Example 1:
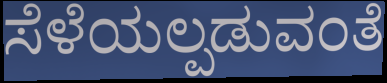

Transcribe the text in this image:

ಸೆಳೆಯಲ್ಪಡುವಂತೆ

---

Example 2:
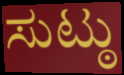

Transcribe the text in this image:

ಸುಟ್ಠು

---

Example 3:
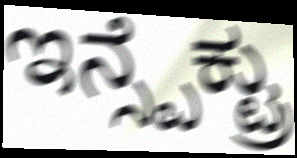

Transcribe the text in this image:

ಇನ್ಸ್ಪೆಕ್ಟ್ರು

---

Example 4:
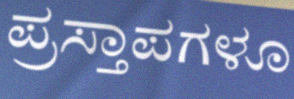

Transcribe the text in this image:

ಪ್ರಸ್ತಾಪಗಳೂ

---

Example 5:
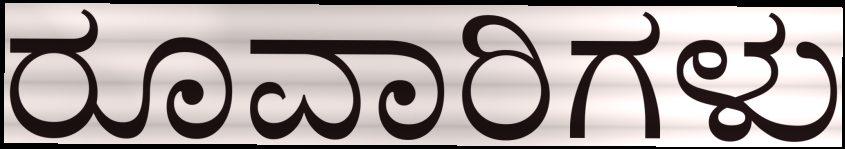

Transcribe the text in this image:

ರೂವಾರಿಗಳು